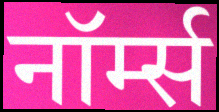
नॉर्म्स